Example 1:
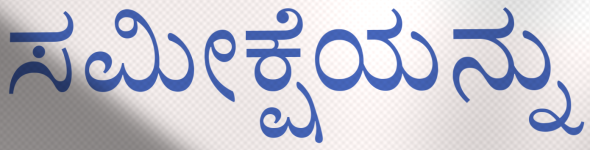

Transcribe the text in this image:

ಸಮೀಕ್ಷೆಯನ್ನು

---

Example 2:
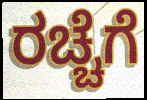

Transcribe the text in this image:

ರಚ್ಚೆಗೆ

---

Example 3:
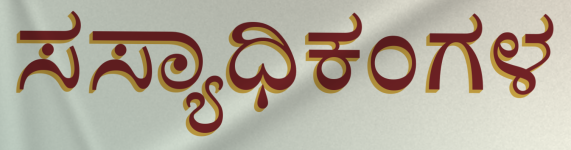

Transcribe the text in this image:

ಸಸ್ಯಾಧಿಕಂಗಳ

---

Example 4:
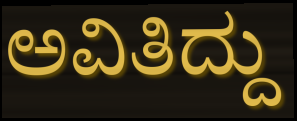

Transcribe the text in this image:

ಅವಿತಿದ್ದು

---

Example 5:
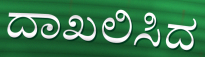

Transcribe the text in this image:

ದಾಖಲಿಸಿದ